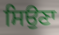
ਸਿਉਣਾ